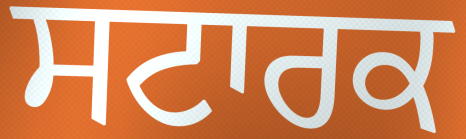
ਸਟਾਰਕ